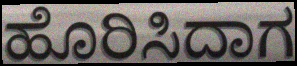
ಹೊರಿಸಿದಾಗ